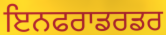
ਇਨਫਰਾਡਰਡਰ